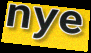
nye